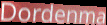
Dordenma